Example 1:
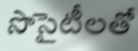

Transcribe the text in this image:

సొసైటీలతో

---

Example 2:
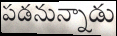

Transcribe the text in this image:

పడనున్నాడు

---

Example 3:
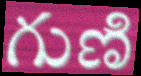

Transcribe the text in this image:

గుణి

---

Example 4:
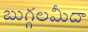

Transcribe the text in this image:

బుగ్గలమీదా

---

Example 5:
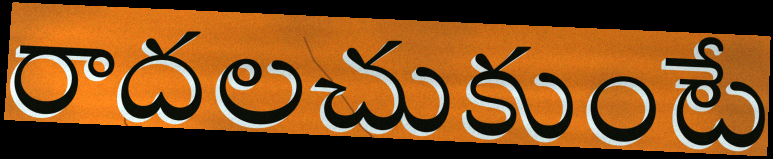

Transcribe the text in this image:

రాదలచుకుంటే